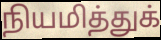
நியமித்துக்